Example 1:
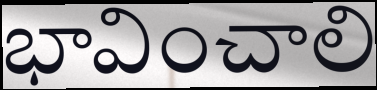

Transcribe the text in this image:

భావించాలి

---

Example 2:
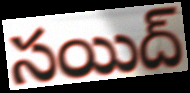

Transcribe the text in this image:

సయిద్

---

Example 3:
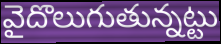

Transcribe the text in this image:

వైదొలుగుతున్నట్టు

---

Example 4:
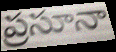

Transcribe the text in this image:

ప్రసూనా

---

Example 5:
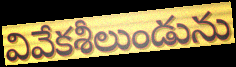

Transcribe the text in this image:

వివేకశీలుండును